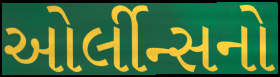
ઓર્લીન્સનો